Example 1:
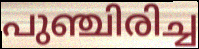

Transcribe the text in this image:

പുഞ്ചിരിച്ച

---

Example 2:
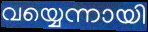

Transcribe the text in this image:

വയ്യെന്നായി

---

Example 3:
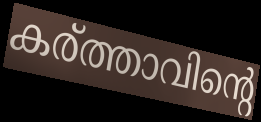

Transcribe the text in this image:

കര്ത്താവിന്റെ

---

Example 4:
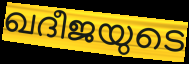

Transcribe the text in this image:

ഖദീജയുടെ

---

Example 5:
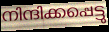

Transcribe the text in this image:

നിന്ദിക്കപ്പെട്ടു